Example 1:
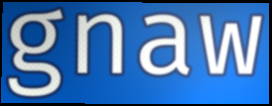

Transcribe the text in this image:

gnaw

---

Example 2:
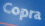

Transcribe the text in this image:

Copra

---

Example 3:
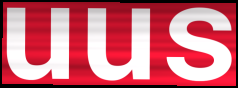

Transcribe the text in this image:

uus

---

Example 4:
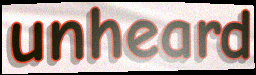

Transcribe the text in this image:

unheard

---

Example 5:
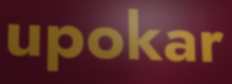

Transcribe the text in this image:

upokar